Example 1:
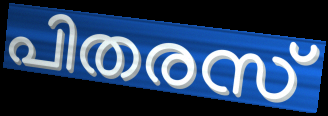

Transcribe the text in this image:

പിതരസ്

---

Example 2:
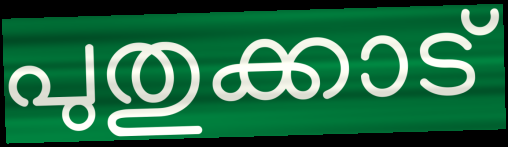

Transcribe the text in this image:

പുതുക്കാട്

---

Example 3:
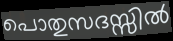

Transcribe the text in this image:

പൊതുസദസ്സിൽ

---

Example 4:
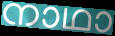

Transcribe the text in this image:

നാഥാ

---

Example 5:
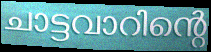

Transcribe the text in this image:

ചാട്ടവാറിന്റെ